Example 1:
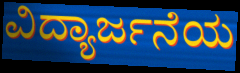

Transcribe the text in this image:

ವಿದ್ಯಾರ್ಜನೆಯ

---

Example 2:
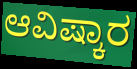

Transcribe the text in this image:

ಆವಿಷ್ಕಾರ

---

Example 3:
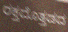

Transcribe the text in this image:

ರಕ್ತದೊತ್ತಡದ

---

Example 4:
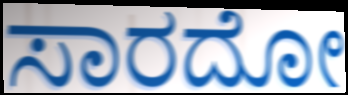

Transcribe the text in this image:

ಸಾರದೋ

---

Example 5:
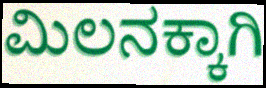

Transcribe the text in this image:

ಮಿಲನಕ್ಕಾಗಿ